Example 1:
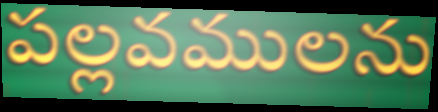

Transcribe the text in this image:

పల్లవములను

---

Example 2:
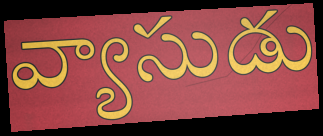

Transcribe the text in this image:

వ్యాసుడు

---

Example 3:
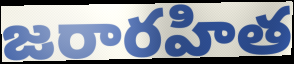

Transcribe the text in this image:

జరారహిత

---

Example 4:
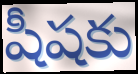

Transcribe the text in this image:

షీషకు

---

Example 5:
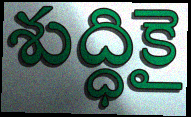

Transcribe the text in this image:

శుద్ధికై